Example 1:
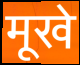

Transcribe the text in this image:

मूखे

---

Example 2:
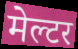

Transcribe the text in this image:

मेल्टर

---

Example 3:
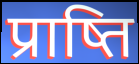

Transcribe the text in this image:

प्राष्ति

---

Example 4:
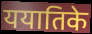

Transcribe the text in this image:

ययातिके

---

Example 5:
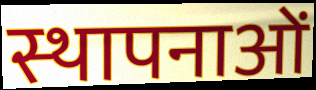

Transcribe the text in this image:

स्थापनाओं